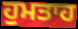
ਹੁਮਤਾਹ